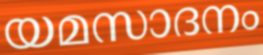
യമസാദനം